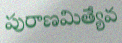
పురాణమిత్యేవ